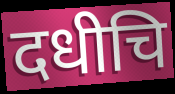
दधीचि